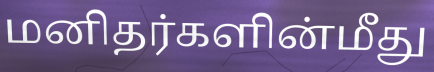
மனிதர்களின்மீது